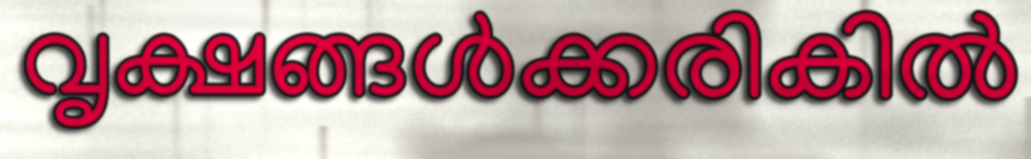
വൃക്ഷങ്ങൾക്കരികിൽ